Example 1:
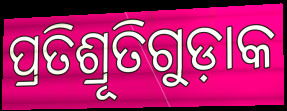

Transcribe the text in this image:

ପ୍ରତିଶ୍ରୂତିଗୁଡ଼ାକ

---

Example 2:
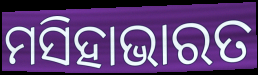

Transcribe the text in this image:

ମସିହାଭାରତ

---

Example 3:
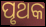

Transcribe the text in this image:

ପୃଥକ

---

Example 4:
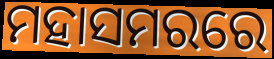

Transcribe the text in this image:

ମହାସମରରେ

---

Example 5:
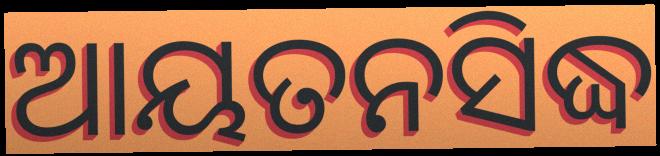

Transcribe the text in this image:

ଆୟତନସିଦ୍ଧ